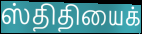
ஸ்திதியைக்